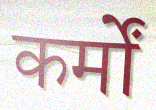
कर्मों